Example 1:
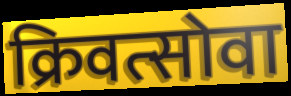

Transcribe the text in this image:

क्रिवत्सोवा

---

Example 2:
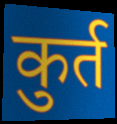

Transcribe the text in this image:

कुर्त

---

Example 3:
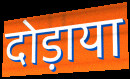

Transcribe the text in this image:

दोड़ाया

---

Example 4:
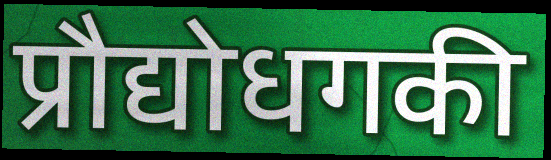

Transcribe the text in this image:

प्रौद्योधगकी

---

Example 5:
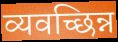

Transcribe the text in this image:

व्यवच्छिन्न